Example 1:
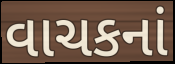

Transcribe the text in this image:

વાચકનાં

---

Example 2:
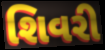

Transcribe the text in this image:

શિવરી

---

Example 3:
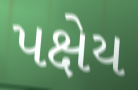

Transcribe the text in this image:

પક્ષેય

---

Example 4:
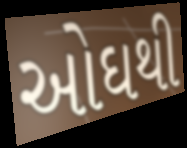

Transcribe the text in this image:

ઓઘથી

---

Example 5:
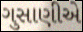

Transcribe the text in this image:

ગુસાણીએ